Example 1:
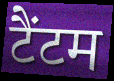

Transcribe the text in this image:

टैंटम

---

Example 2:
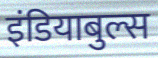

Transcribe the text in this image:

इंडियाबुल्‍स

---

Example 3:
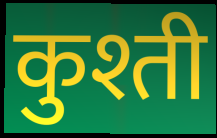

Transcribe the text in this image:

कुश्ती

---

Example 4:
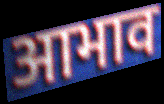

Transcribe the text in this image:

आभाव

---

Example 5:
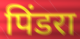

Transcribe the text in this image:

पिंडरा